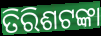
ତିରିଶଟଙ୍କା